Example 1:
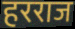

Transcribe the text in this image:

हरराज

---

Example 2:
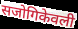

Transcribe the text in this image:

सजोगिकेवली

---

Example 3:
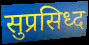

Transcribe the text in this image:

सुप्रसिध्द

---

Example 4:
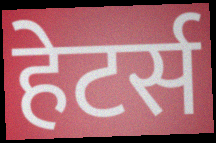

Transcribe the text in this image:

हेटर्स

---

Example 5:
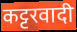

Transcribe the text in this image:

कट्टरवादी